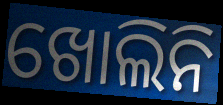
ଖୋଲିନି